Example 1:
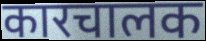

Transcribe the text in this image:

कारचालक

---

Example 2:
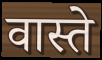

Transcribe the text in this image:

वास्ते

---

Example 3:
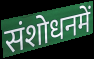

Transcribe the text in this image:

संशोधनमें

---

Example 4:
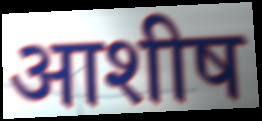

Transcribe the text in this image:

आशीष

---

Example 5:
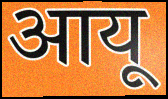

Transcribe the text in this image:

आयू